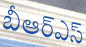
బీఆర్ఎస్